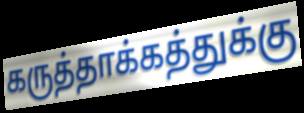
கருத்தாக்கத்துக்கு